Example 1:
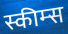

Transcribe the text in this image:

स्कीम्स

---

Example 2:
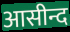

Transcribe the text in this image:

आसीन्द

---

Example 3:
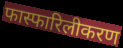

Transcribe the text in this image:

फास्फारिलीकरण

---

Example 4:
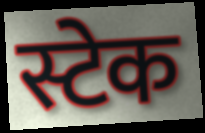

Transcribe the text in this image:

स्टेक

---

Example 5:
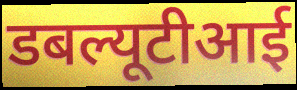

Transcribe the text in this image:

डबल्यूटीआई